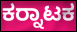
ಕರ‍್ನಾಟಕ